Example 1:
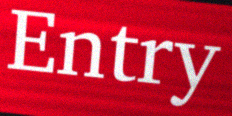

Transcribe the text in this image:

Entry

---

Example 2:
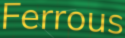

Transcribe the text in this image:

Ferrous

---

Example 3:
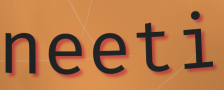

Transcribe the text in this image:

neeti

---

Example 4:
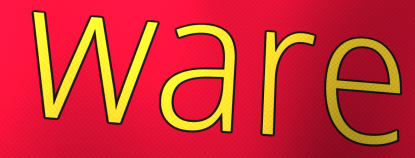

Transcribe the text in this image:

ware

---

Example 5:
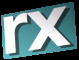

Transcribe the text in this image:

rx